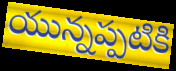
యున్నప్పటికి